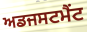
ਅਡਜਸਟਮੈਂਟ